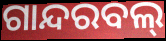
ଗାନ୍ଦରବଲ୍